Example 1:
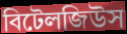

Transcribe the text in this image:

বিটেলজিউস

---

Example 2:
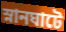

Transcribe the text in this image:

স্নানঘাটে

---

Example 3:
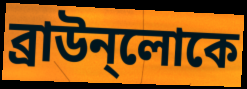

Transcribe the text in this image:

ব্রাউন্লোকে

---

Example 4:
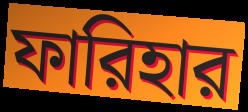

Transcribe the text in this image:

ফারিহার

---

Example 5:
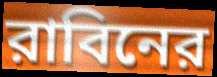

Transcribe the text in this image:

রাবিনের